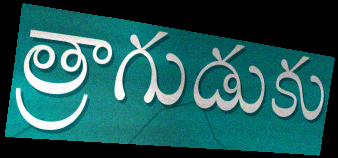
త్రాగుడుకు